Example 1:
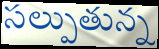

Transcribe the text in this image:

సల్పుతున్న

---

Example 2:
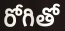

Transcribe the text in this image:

రోగితో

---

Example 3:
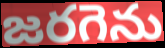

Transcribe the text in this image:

జరగెను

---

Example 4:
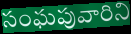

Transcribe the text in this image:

సంఘపువారిని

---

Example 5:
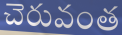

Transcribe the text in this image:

చెరువంత